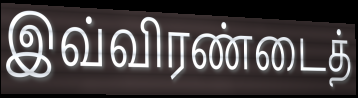
இவ்விரண்டைத்